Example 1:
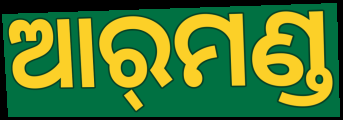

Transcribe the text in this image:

ଆର୍‌ମଣ୍ଡ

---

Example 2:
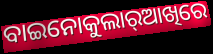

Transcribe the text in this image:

ବାଇନୋକୁଲାର୍‌ଆଖିରେ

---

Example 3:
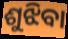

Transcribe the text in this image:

ଶୁଝିବା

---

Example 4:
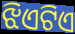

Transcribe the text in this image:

ଝିଏଟିଏ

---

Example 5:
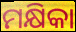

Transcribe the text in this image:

ମକ୍ଷିକା